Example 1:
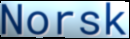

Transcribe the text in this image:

Norsk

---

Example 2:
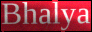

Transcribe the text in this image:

Bhalya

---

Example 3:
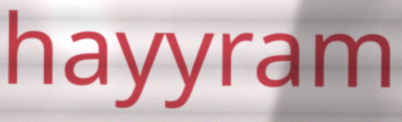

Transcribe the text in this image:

hayyram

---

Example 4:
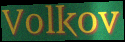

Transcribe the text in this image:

Volkov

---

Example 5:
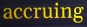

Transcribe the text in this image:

accruing